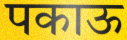
पकाऊ